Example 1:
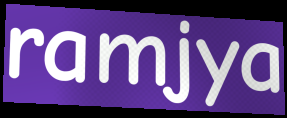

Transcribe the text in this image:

ramjya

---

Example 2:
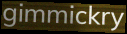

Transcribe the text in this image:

gimmickry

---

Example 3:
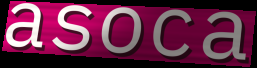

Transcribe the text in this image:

asoca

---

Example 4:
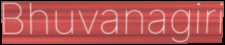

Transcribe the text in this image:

Bhuvanagiri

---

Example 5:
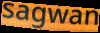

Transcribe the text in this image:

sagwan